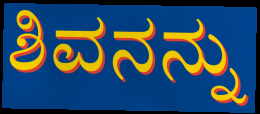
ಶಿವನನ್ನು